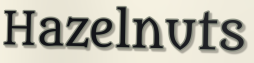
Hazelnuts